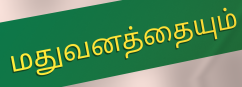
மதுவனத்தையும்